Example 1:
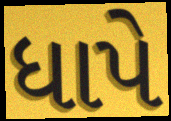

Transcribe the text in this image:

ધાપે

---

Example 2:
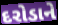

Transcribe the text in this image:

દરોડાને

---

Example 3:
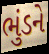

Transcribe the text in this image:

ભુંડને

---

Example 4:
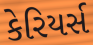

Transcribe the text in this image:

કેરિયર્સ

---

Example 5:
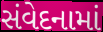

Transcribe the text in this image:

સંવેદનામાં